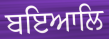
ਬਇਆਲਿ